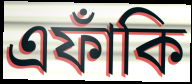
এফাঁকি